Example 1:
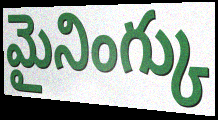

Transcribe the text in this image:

మైనింగ్కు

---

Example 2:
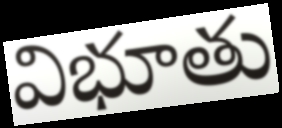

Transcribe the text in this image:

విభూతు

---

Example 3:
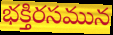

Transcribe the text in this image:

భక్తిరసమున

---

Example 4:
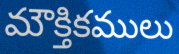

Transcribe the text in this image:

మౌక్తికములు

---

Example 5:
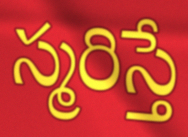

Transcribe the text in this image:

స్మరిస్తే